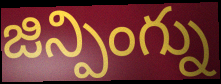
జిన్పింగ్ను